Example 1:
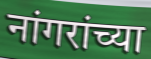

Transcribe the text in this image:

नांगरांच्या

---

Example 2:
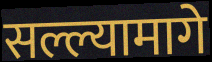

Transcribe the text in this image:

सल्ल्यामागे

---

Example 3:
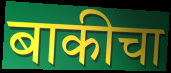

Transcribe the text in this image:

बाकीचा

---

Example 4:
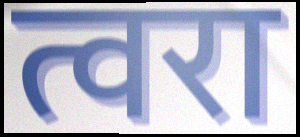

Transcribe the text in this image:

त्वरा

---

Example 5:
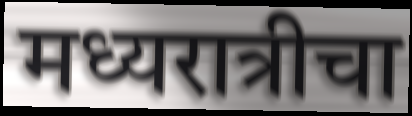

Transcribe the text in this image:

मध्यरात्रीचा